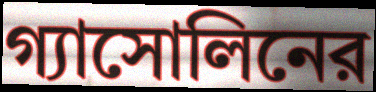
গ্যাসোলিনের